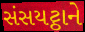
સંસયટ્ઠાને